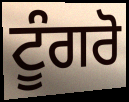
ਟੂੰਗਰੋ